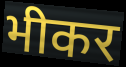
भीकर